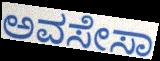
ಅವಸೇಸಾ